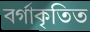
বৰ্গাকৃতিত